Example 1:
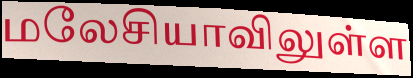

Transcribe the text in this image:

மலேசியாவிலுள்ள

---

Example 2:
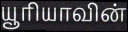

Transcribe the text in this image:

யூரியாவின்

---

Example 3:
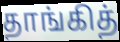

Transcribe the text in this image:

தாங்கித்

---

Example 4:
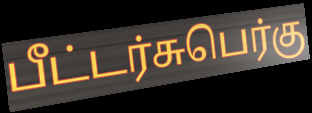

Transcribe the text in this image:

பீட்டர்சுபெர்கு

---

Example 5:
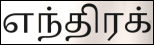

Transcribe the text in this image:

எந்திரக்